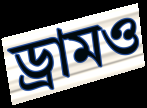
ড্রামও